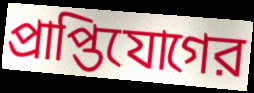
প্রাপ্তিযোগের